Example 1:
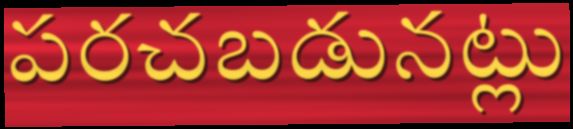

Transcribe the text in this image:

పరచబడునట్లు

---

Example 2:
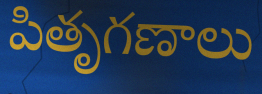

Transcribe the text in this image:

పితృగణాలు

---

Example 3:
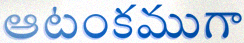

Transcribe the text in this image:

ఆటంకముగా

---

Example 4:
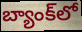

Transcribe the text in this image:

బ్యాంక్‌లో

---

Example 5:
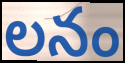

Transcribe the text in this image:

లనం